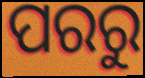
ପରରୁ